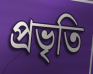
প্রভৃতি